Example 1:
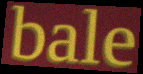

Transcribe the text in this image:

bale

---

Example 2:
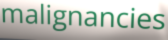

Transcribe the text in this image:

malignancies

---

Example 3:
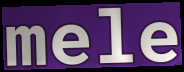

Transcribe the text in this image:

mele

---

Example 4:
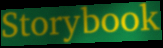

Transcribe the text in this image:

Storybook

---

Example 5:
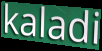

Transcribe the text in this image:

kaladi